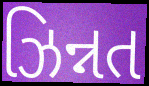
ઝિન્નત